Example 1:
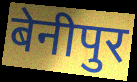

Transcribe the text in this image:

बेनीपुर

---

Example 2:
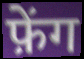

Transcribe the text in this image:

फ़ेंग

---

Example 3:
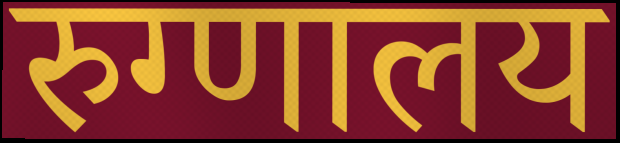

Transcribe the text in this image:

रुग्णालय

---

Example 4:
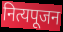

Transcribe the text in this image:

नित्यपूजन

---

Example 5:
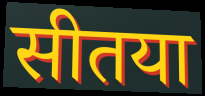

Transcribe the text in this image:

सीतया